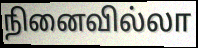
நினைவில்லா